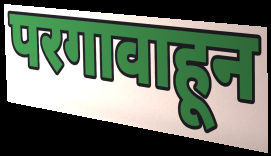
परगावाहून